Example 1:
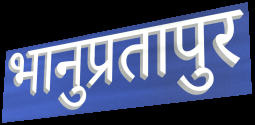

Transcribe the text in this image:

भानुप्रतापुर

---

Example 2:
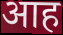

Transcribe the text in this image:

आह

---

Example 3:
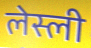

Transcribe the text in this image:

लेस्ली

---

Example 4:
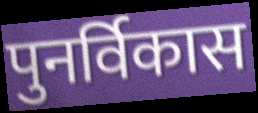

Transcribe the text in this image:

पुनर्विकास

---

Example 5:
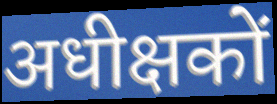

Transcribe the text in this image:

अधीक्षकों